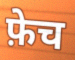
फ़ेच